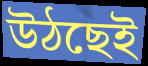
উঠছেই